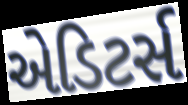
એડિટર્સ